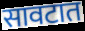
सावटात